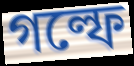
গল্ফে